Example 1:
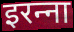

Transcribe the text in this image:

इरन्ना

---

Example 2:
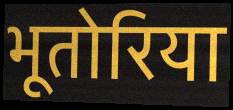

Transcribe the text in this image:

भूतोरिया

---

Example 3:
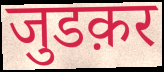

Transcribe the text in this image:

जुडक़र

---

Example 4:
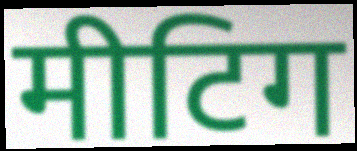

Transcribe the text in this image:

मीटिग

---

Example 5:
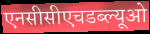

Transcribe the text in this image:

एनसीसीएचडब्ल्यूओ